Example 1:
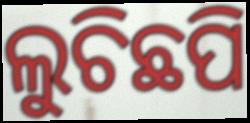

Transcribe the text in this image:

ଲୁଚିଛପି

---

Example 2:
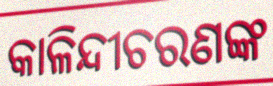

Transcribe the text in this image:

କାଳିନ୍ଦୀଚରଣଙ୍କ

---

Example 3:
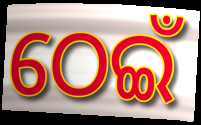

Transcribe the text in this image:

ଠେଇଁ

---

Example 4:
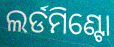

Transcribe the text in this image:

ଲର୍ଡମିଣ୍ଟୋ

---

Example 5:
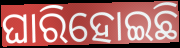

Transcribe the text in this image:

ଘାରିହୋଇଛି